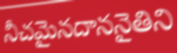
నీచమైనదాననైతిని